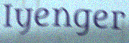
Iyenger